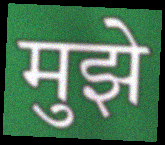
मुझे